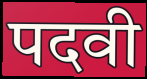
पदवी